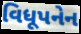
વિધૂપનેન